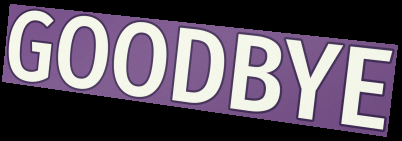
GOODBYE